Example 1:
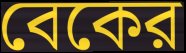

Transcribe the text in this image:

বেকের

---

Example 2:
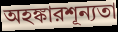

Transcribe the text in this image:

অহঙ্কারশূন্যতা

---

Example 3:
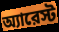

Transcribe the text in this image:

অ্যারেস্ট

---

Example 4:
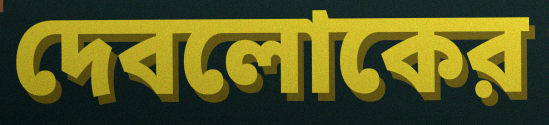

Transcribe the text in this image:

দেবলোকের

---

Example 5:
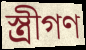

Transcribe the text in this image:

স্ত্রীগণ